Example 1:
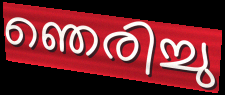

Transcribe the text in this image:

ഞെരിച്ചു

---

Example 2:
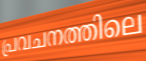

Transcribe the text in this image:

പ്രവചനത്തിലെ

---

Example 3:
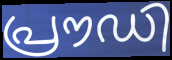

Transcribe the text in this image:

പ്രൗഡി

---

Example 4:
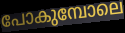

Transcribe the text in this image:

പോകുമ്പോലെ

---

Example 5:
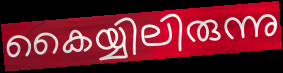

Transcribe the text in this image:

കൈയ്യിലിരുന്നു